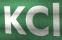
KCl